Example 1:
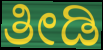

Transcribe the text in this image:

ತೀಡಿ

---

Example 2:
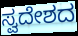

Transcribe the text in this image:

ಸ್ವದೇಶದ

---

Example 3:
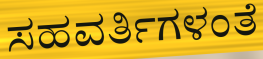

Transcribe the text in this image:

ಸಹವರ್ತಿಗಳಂತೆ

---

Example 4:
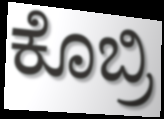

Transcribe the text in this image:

ಕೊಬ್ರಿ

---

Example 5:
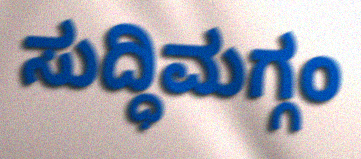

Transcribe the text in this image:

ಸುದ್ಧಿಮಗ್ಗಂ